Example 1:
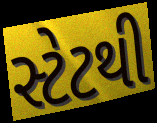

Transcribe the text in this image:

સ્ટેટથી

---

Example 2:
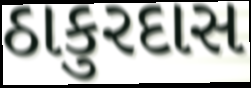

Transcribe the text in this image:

ઠાકુરદાસ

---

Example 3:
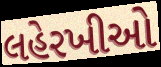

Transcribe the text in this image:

લહેરખીઓ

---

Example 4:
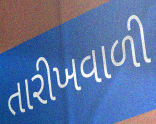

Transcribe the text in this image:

તારીખવાળી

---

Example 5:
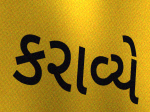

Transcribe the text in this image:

કરાવ્યે